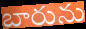
బారును